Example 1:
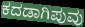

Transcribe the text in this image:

ಕದಡಾಗಿಪುವು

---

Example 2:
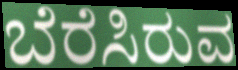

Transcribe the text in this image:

ಬೆರೆಸಿರುವ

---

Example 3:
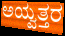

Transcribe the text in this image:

ಅಯ್ವತ್ತರ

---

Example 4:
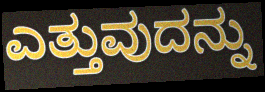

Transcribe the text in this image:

ಎತ್ತುವುದನ್ನು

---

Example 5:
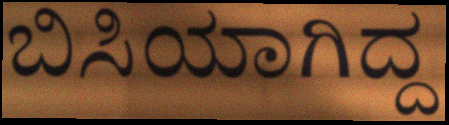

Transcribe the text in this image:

ಬಿಸಿಯಾಗಿದ್ದ